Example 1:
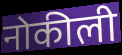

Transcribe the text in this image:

नोकीली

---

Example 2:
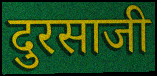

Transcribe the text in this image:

दुरसाजी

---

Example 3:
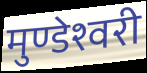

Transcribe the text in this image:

मुण्डेश्वरी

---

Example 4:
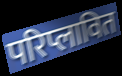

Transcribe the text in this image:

परिप्लावित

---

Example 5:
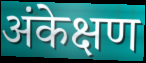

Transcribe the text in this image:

अंकेक्षण